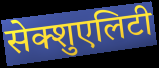
सेक्शुएलिटी